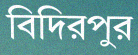
বিদিরপুর